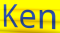
Ken